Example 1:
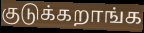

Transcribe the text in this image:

குடுக்கறாங்க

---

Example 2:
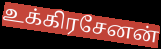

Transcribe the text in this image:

உக்கிரசேனன்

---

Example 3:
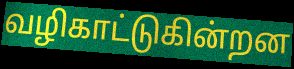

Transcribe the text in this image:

வழிகாட்டுகின்றன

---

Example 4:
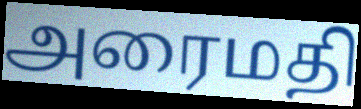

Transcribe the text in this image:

அரைமதி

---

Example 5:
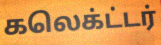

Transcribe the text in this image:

கலெக்ட்டர்